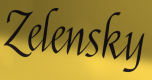
Zelensky